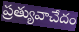
ప్రత్యువాచేదం